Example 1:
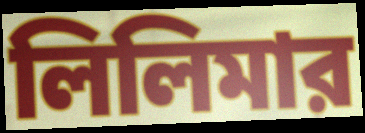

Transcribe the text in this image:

লিলিমার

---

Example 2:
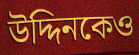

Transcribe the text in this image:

উদ্দিনকেও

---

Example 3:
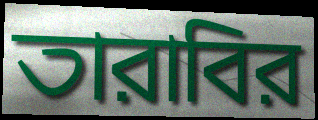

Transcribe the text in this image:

তারাবির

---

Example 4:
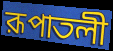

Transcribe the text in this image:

রূপাতলী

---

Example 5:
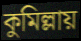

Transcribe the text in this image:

কুমিল্লায়